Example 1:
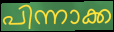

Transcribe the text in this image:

പിന്നാക്ക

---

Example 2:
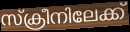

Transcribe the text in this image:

സ്‌ക്രീനിലേക്ക്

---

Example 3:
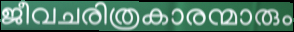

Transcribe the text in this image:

ജീവചരിത്രകാരന്മാരും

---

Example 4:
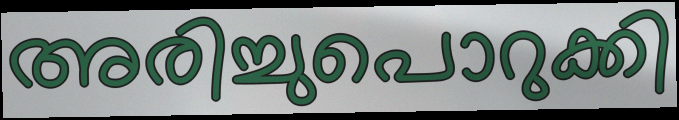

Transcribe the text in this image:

അരിച്ചുപൊറുക്കി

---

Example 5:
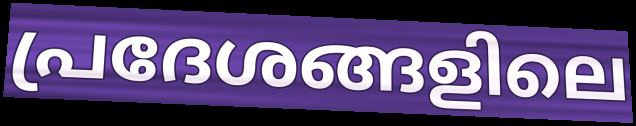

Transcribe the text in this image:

പ്രദേശങ്ങളിലെ